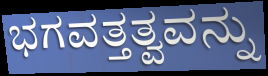
ಭಗವತ್ತತ್ವವನ್ನು